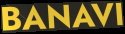
BANAVI